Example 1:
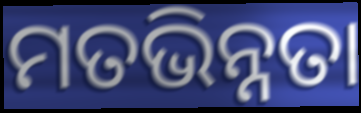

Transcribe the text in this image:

ମତଭିନ୍ନତା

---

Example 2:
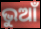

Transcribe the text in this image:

ଭୁଆଁ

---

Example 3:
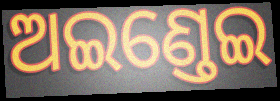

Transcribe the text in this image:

ଅଇଣ୍ଡେଇ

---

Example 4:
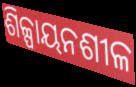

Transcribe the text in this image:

ଶିଳ୍ପାୟନଶୀଳ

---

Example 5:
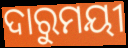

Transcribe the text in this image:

ଦାରୁମୟୀ